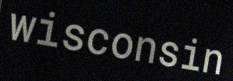
wisconsin